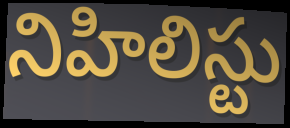
నిహిలిస్టు